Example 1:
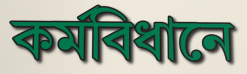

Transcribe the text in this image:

কর্মবিধানে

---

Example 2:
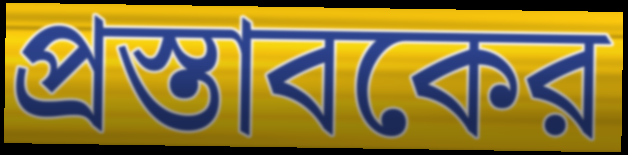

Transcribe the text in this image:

প্রস্তাবকের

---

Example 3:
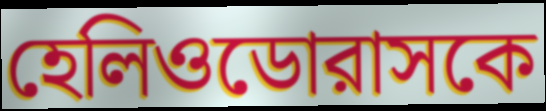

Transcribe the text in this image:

হেলিওডোরাসকে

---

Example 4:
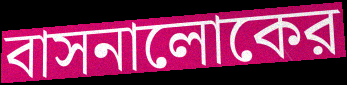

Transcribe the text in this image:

বাসনালোকের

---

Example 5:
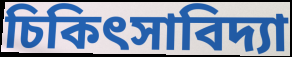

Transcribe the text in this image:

চিকিৎসাবিদ্যা